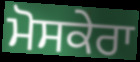
ਮੋਸਕੇਰਾ